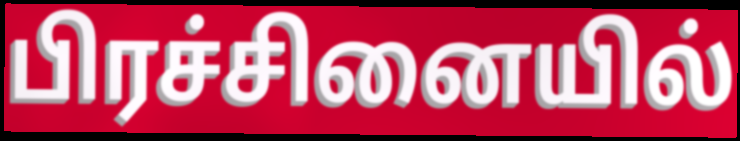
பிரச்சினையில்